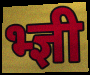
भ्ज्ञी